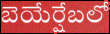
బెయేర్షేబలో